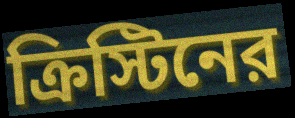
ক্রিস্টিনের